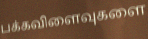
பக்கவிளைவுகளை